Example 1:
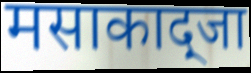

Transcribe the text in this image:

मसाकाद्जा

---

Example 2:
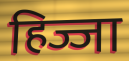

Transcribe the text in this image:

हिज्जा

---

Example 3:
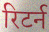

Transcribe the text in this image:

रिटर्न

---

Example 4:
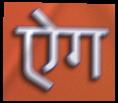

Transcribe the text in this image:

ऐग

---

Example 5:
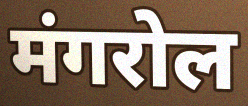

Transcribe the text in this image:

मंगरोल